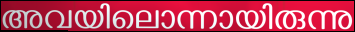
അവയിലൊന്നായിരുന്നു